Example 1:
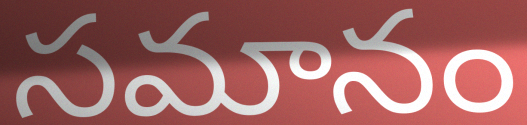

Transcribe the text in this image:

సమానం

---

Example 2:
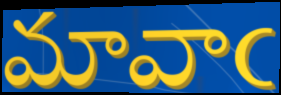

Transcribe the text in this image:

మావాఁ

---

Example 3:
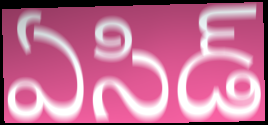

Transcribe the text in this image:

ఏసిడ్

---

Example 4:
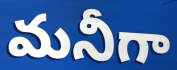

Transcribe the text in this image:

మనీగా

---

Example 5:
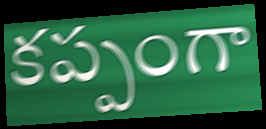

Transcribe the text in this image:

కప్పంగా